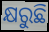
କ୍ଷରୁଛି